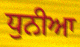
ਧੁਨੀਆ